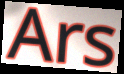
Ars